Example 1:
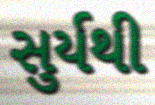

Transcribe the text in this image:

સુર્યથી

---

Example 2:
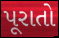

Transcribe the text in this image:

પૂરાતો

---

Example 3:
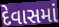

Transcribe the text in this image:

દેવાસમાં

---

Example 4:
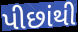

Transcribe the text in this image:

પીછાંથી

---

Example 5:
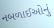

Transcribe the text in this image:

નબળાઈઓનું